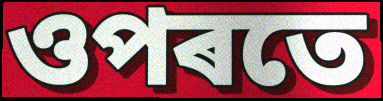
ওপৰতে